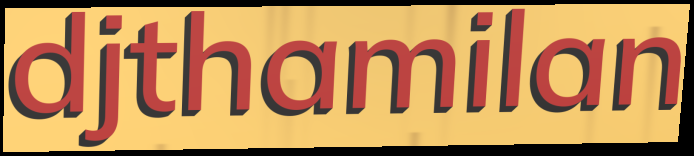
djthamilan